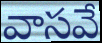
వాసవే